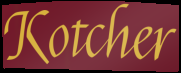
Kotcher